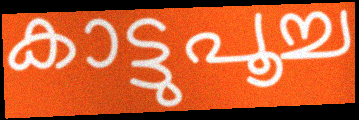
കാട്ടുപൂച്ച